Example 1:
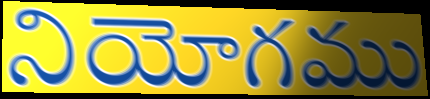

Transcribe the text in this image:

నియోగము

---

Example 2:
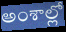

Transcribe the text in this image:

అంశాల్లో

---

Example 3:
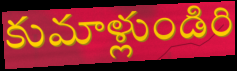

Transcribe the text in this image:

కుమాళ్లుండిరి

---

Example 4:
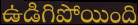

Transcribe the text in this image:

ఉడిగిపోయింది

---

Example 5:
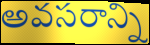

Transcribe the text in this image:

అవసరాన్ని